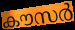
കൗസർ